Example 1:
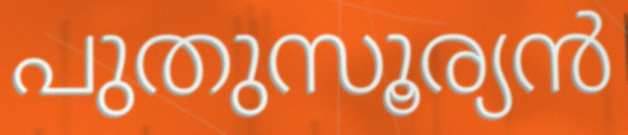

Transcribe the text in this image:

പുതുസൂര്യൻ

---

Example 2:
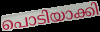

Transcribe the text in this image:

പൊടിയാക്കി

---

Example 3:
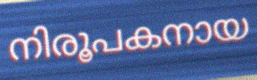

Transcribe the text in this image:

നിരൂപകനായ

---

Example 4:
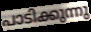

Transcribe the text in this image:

പാടിക്കുന്നു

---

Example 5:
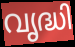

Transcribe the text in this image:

വൃദ്ധി